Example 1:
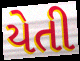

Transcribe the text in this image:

યેતી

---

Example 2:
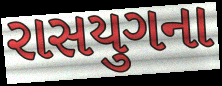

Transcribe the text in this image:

રાસયુગના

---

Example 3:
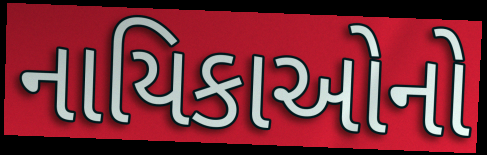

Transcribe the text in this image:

નાયિકાઓનો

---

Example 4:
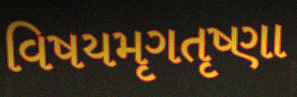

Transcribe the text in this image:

વિષયમૃગતૃષ્ણા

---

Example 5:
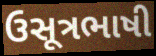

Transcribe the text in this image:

ઉસૂત્રભાષી